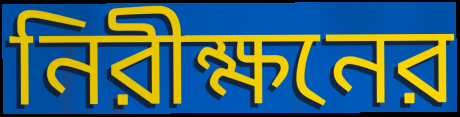
নিরীক্ষনের